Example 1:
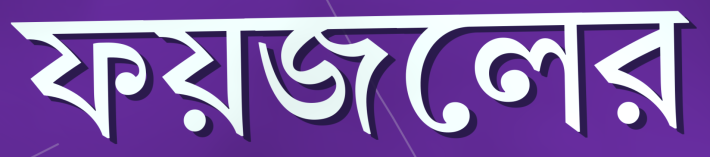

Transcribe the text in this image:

ফয়জলের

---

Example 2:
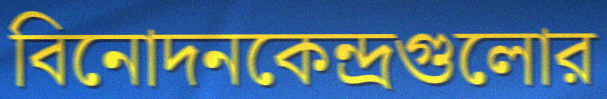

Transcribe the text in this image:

বিনোদনকেন্দ্রগুলোর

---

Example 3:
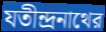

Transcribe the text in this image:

যতীন্দ্রনাথের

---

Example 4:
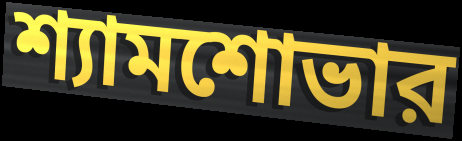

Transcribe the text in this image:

শ্যামশোভার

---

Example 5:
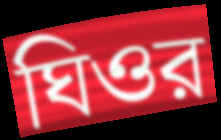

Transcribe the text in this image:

ঘিওর